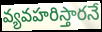
వ్యవహరిస్తారనే